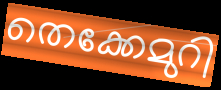
തെക്കേമുറി